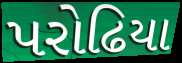
પરોઢિયા